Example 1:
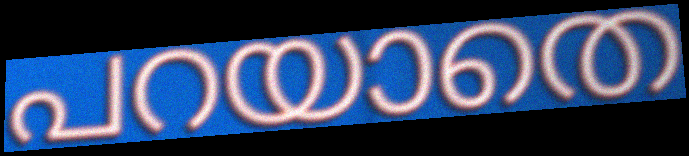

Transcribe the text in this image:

പറയാതെ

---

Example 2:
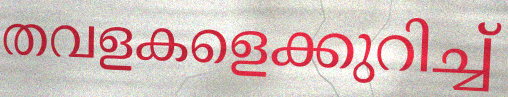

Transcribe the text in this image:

തവളകളെക്കുറിച്ച്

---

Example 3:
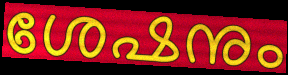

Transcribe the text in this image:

ശേഷനും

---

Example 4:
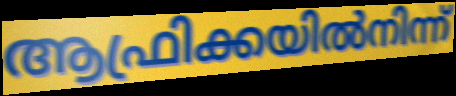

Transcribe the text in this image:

ആഫ്രിക്കയിൽനിന്ന്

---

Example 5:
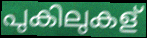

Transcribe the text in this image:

പുകിലുകള്